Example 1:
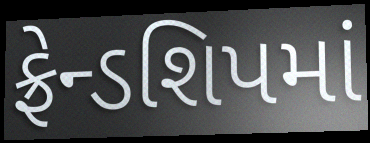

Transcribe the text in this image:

ફ્રેન્ડશિપમાં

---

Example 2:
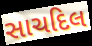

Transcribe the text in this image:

સાચદિલ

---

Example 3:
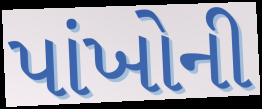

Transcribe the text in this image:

પાંખોની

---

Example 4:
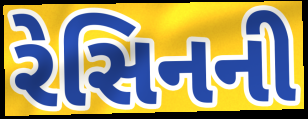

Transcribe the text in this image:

રેસિનની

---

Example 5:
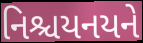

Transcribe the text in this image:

નિશ્ચયનયને